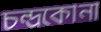
চন্দ্রকোনা